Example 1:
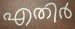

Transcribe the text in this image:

എതിർ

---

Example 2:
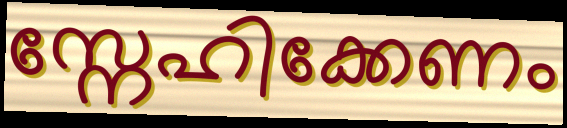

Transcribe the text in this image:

സ്നേഹിക്കേണം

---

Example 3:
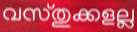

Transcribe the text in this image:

വസ്തുക്കളല്ല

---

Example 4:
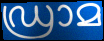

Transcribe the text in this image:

ഡ്രാമ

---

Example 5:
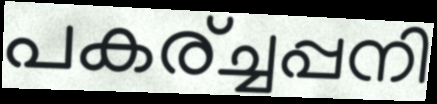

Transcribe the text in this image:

പകര്ച്ചപ്പനി